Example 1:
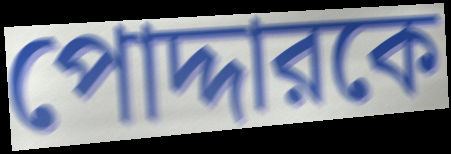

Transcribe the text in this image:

পোদ্দারকে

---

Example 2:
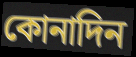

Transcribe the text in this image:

কোনাদিন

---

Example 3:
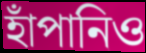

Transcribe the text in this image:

হাঁপানিও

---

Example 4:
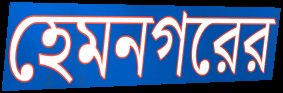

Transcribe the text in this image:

হেমনগরের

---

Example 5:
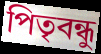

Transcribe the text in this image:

পিতৃবন্ধু